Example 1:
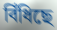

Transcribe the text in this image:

বিঁধিছে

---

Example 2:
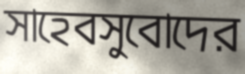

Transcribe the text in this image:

সাহেবসুবোদের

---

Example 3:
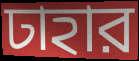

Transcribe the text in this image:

ঢাহার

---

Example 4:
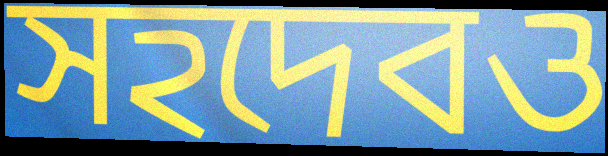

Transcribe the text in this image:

সহদেবও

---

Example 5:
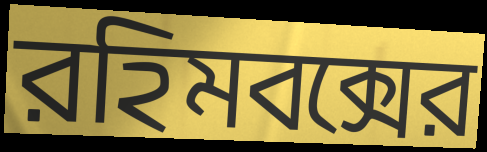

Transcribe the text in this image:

রহিমবক্সের